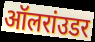
ऑलरांउडर